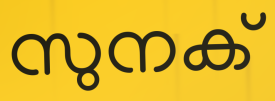
സുനക്